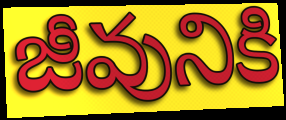
జీవునికి